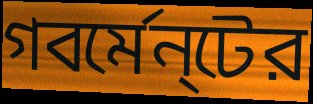
গবর্মেন্‌টের